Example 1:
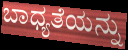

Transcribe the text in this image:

ಬಾಧ್ಯತೆಯನ್ನು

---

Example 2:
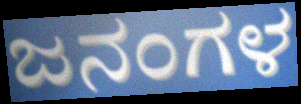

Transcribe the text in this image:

ಜನಂಗಳ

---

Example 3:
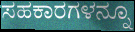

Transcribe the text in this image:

ಸಹಕಾರಗಳನ್ನೂ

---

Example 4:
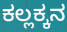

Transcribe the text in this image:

ಕಲ್ಲಕ್ಕನ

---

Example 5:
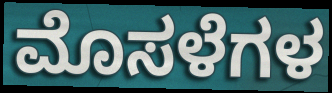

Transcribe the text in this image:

ಮೊಸಳೆಗಳ